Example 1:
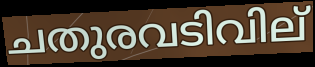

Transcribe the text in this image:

ചതുരവടിവില്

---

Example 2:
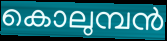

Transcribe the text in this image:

കൊലുമ്പൻ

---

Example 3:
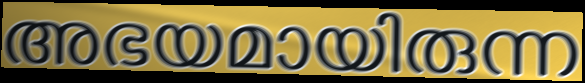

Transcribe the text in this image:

അഭയമായിരുന്ന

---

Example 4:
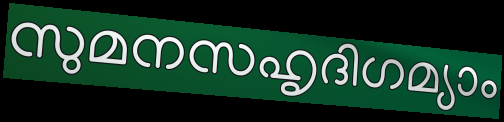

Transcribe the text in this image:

സുമനസഹൃദിഗമ്യാം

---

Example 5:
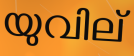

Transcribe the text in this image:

യുവില്